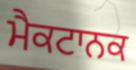
ਮੈਕਟਾਨਕ